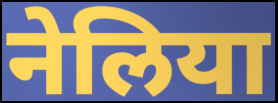
नेलिया